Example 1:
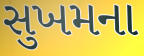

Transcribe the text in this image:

સુખમના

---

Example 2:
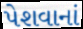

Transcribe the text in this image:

પેશવાનાં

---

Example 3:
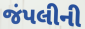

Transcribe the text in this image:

જંપલીની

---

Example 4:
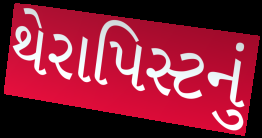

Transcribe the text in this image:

થેરાપિસ્ટનું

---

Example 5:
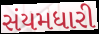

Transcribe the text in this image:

સંયમધારી